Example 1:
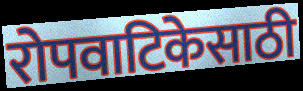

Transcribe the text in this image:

रोपवाटिकेसाठी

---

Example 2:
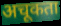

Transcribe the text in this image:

अचूकता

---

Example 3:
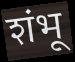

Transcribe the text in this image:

शंभू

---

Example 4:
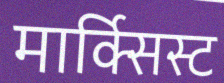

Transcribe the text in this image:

मार्क्सिस्ट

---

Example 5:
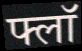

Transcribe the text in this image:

फ्लॉ